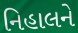
નિહાલને